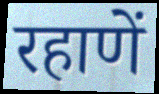
रहाणें